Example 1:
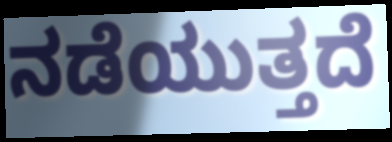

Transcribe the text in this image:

ನಡೆಯುತ್ತದೆ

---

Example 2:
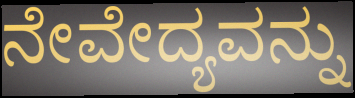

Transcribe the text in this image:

ನೇವೇದ್ಯವನ್ನು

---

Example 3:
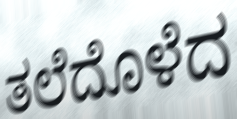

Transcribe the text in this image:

ತಲೆದೊಳೆದ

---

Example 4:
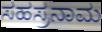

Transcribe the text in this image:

ಸಹಸ್ರನಾಮ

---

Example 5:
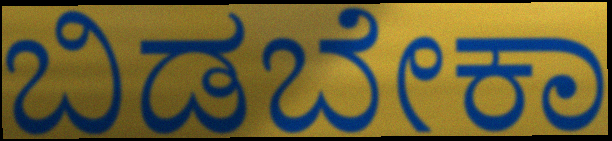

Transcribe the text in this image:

ಬಿಡಬೇಕಾ